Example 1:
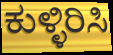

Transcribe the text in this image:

ಕುಳ್ಳಿರಿಸಿ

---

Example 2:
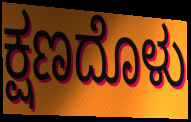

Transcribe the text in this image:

ಕ್ಷಣದೊಳು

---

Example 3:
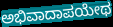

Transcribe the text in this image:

ಅಭಿವಾದಾಪಯೇಥ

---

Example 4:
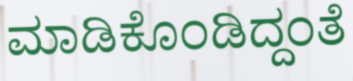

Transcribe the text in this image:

ಮಾಡಿಕೊಂಡಿದ್ದಂತೆ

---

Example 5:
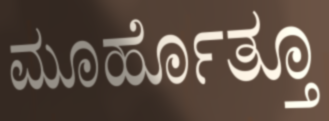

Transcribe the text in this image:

ಮೂರ್ಹೊತ್ತೂ